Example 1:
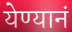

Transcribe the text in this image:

येण्यानं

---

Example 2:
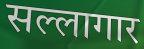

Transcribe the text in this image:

सल्‍लागार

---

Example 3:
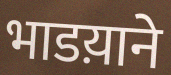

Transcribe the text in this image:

भाडय़ाने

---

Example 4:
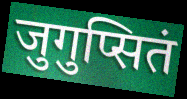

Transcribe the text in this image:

जुगुप्सितं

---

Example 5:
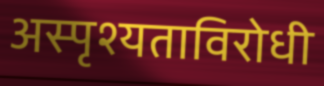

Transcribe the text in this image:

अस्पृश्यताविरोधी